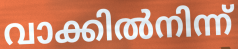
വാക്കിൽനിന്ന്